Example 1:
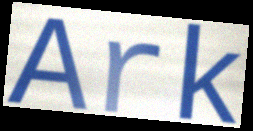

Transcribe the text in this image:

Ark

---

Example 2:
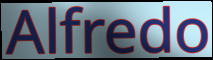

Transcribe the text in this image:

Alfredo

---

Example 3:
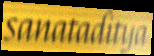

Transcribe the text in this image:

sanataditya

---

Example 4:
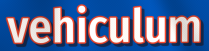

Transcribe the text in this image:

vehiculum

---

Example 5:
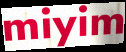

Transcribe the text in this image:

miyim